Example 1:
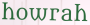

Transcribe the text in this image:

howrah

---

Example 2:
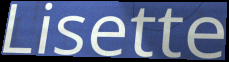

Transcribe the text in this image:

Lisette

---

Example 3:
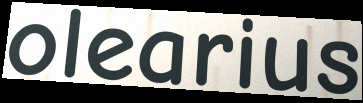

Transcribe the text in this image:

olearius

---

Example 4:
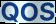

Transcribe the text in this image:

QOS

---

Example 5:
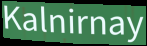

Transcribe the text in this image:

Kalnirnay